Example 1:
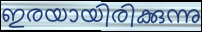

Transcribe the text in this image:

ഇരയായിരിക്കുന്നു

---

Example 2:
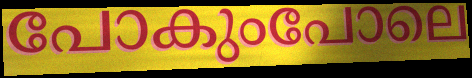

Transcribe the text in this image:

പോകുംപോലെ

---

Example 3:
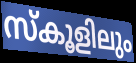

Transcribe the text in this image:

സ്കൂളിലും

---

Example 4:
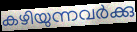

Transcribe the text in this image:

കഴിയുന്നവർക്കു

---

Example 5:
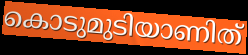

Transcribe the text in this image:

കൊടുമുടിയാണിത്